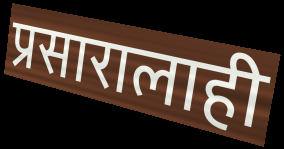
प्रसारालाही